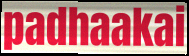
padhaakai